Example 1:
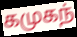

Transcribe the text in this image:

கமுகந்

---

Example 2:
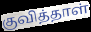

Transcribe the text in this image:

குவித்தாள்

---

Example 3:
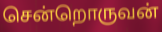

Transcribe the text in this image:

சென்றொருவன்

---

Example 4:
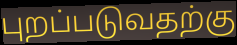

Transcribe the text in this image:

புறப்படுவதற்கு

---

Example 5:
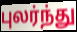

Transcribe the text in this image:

புலர்ந்து